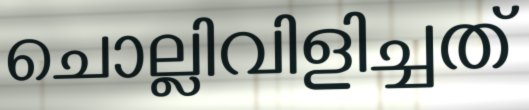
ചൊല്ലിവിളിച്ചത്